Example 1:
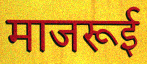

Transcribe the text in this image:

माजरूई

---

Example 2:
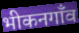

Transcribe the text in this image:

भीकनगाँव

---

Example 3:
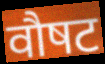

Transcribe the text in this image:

वौषट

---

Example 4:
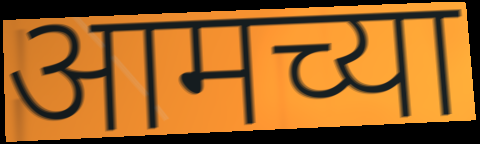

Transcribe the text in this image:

आमच्या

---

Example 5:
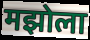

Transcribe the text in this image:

मझोला